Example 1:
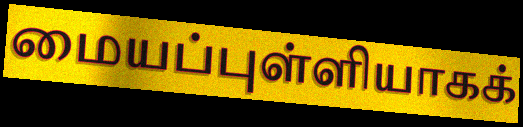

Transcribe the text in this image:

மையப்புள்ளியாகக்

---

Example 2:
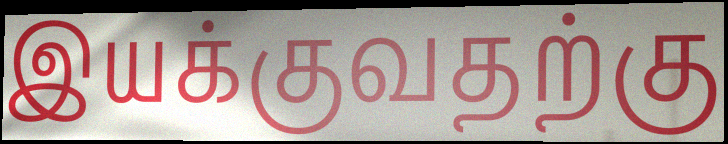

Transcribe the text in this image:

இயக்குவதற்கு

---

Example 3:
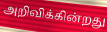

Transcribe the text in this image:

அறிவிக்கின்றது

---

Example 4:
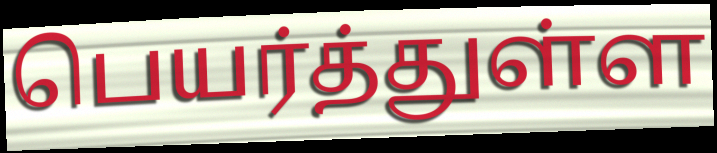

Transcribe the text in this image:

பெயர்த்துள்ள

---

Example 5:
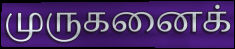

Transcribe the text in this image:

முருகனைக்